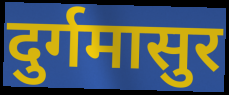
दुर्गमासुर